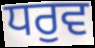
ਧਰੁਵ